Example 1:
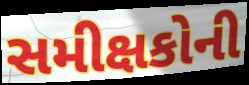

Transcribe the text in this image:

સમીક્ષકોની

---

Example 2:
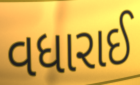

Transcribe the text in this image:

વધારાઈ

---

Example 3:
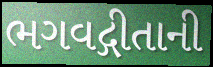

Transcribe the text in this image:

ભગવદ્ગીતાની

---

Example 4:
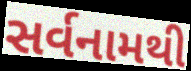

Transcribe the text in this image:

સર્વનામથી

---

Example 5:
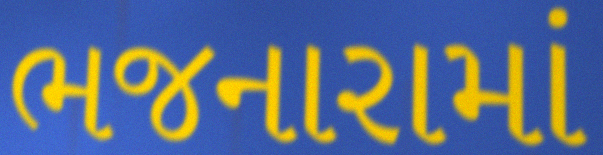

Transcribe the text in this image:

ભજનારામાં